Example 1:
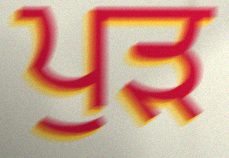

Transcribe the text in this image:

ਪੁੜ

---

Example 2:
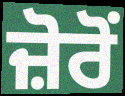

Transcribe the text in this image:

ਜ਼ੋਰੋਂ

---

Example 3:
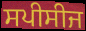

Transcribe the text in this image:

ਸਪੀਸੀਜ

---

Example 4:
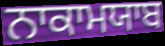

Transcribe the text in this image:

ਨਾਕਾਮਯਾਬ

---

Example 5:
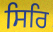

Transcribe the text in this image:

ਸਿਰਿ